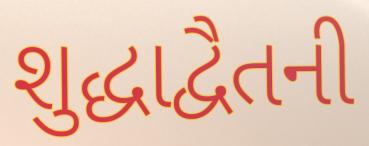
શુદ્ધાદ્વૈતની